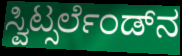
ಸ್ವಿಟ್ಸರ್ಲೆಂಡ್‌ನ